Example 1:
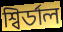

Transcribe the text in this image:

শ্বিৰ্ডাল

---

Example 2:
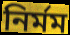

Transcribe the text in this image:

নিৰ্মম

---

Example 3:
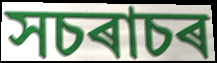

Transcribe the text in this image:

সচৰাচৰ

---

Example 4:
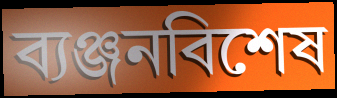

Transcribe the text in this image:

ব্যঞ্জনবিশেষ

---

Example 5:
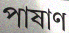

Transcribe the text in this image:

পাষাণ